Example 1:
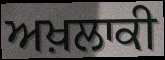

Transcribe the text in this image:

ਅਖ਼ਲਾਕੀ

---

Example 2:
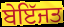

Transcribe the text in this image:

ਬੇਇੱਜਤ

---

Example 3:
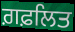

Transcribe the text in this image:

ਗ਼ਫ਼ਲਿਤ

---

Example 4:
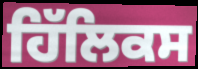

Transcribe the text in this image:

ਹਿੱਲਿਕਸ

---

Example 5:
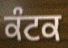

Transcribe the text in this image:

ਕੰਟਕ